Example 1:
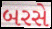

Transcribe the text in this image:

બરસે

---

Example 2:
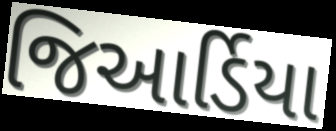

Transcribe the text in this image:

જિઆર્ડિયા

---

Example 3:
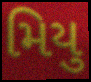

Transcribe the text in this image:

મિયુ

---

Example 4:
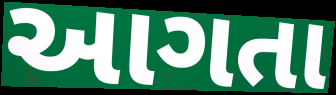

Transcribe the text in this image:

આગતા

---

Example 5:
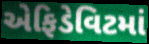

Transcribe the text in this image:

એફિડેવિટમાં